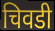
चिवडी